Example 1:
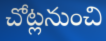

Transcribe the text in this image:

చోట్లనుంచి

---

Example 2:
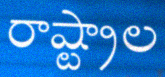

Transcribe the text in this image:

రాష్ట్రాల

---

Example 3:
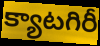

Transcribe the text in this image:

క్యాటగిరీ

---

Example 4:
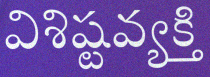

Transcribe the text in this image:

విశిష్టవ్యక్తి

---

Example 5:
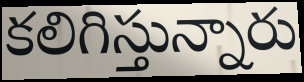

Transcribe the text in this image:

కలిగిస్తున్నారు